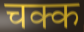
चक्क